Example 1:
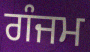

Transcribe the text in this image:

ਗੰਜਮ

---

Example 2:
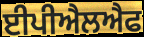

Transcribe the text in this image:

ਈਪੀਐਲਐਫ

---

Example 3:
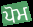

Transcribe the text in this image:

ਪੋਮ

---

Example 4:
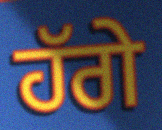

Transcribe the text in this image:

ਹੱਗੇ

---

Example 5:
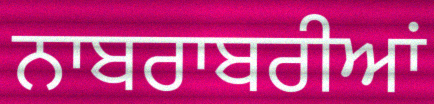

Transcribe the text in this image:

ਨਾਬਰਾਬਰੀਆਂ